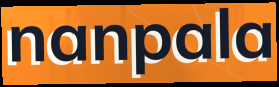
nanpala